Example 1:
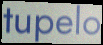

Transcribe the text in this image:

tupelo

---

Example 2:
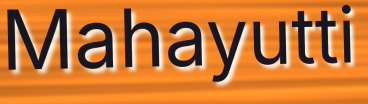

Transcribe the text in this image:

Mahayutti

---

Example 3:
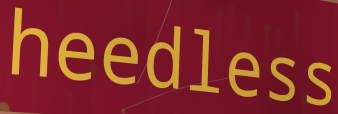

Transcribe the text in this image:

heedless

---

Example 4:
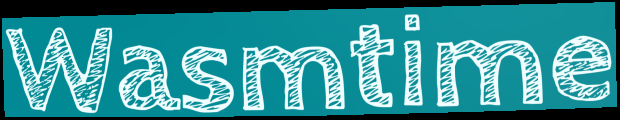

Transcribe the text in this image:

Wasmtime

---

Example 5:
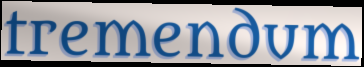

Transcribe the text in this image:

tremendum